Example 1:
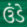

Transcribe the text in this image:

ઉંડે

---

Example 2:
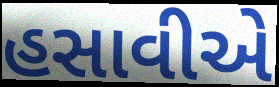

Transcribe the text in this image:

હસાવીએ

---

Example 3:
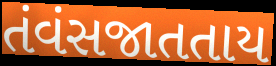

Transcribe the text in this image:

તંવંસજાતતાય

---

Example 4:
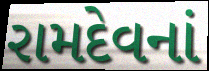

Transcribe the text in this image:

રામદેવનાં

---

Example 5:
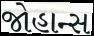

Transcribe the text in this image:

જોહાન્સ